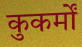
कुकर्मों